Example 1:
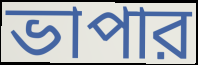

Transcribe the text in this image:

ভাপার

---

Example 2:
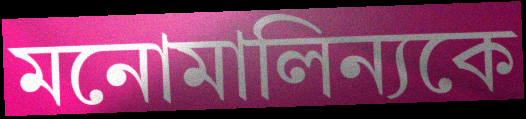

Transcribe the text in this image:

মনোমালিন্যকে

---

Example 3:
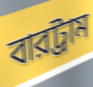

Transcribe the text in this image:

বারট্রাম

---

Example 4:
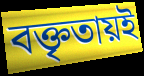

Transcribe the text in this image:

বক্তৃতায়ই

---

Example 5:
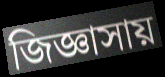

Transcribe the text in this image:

জিজ্ঞাসায়